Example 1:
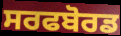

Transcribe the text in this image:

ਸਰਫਬੋਰਡ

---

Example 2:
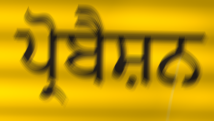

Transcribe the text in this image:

ਪ੍ਰੋਬੈਸ਼ਨ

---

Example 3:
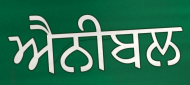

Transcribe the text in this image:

ਐਨੀਬਲ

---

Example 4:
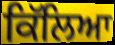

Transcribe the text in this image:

ਕਿੱਲਿਆ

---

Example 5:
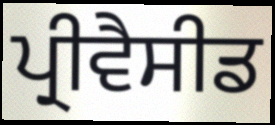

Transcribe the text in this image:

ਪ੍ਰੀਵੈਸੀਡ